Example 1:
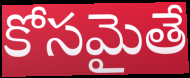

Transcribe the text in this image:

కోసమైతే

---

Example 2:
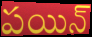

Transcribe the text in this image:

పయిన్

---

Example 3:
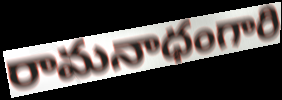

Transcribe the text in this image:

రామనాధంగారి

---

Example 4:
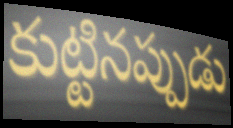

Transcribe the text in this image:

కుట్టినప్పుడు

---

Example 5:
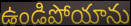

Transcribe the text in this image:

ఉండిపోయాను